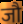
जौ